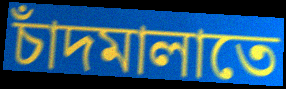
চাঁদমালাতে